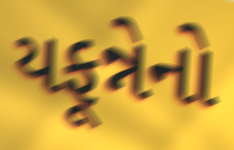
યફૂન્નેનો